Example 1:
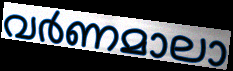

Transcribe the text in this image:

വർണമാലാ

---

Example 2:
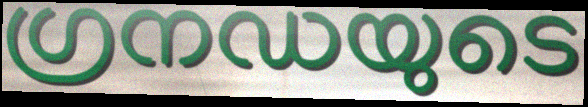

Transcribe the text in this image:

ഗ്രനഡയുടെ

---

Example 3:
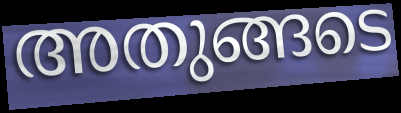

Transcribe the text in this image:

അതുങ്ങടെ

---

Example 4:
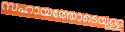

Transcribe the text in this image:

സഹായത്തോടെയുള്ള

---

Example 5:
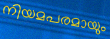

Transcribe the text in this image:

നിയമപരമായും